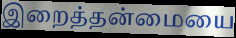
இறைத்தன்மையை